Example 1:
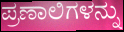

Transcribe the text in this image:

ಪ್ರಣಾಲಿಗಳನ್ನು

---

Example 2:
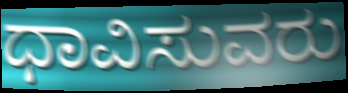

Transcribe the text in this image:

ಧಾವಿಸುವರು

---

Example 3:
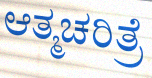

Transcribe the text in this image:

ಆತ್ಮಚರಿತ್ರೆ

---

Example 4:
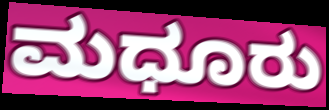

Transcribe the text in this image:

ಮಧೂರು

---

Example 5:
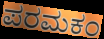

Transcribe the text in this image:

ಪರಮಕಂ